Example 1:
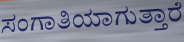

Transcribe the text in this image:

ಸಂಗಾತಿಯಾಗುತ್ತಾರೆ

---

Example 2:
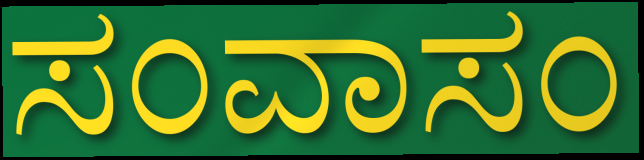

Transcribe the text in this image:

ಸಂವಾಸಂ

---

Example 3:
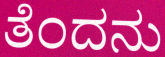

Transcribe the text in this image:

ತೆಂದನು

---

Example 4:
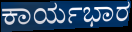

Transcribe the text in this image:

ಕಾರ್ಯಭಾರ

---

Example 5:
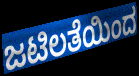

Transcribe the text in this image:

ಜಟಿಲತೆಯಿಂದ